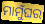
ମାମୁଁଘର